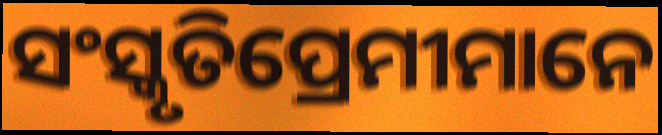
ସଂସ୍କୃତିପ୍ରେମୀମାନେ